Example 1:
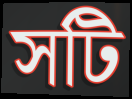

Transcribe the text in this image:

সটি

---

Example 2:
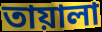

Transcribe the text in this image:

তায়ালা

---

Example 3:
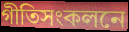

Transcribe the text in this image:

গীতিসংকলনে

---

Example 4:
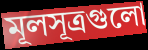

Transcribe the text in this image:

মূলসূত্রগুলো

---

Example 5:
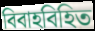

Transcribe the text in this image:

বিবাহবিহিত